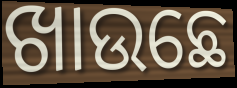
ଖାଉଛେ